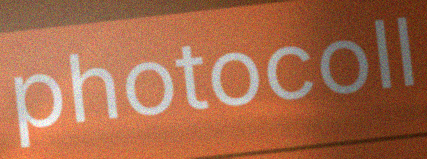
photocoll